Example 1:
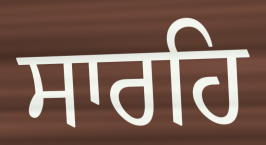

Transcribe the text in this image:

ਸਾਰਹਿ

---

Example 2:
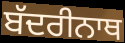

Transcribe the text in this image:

ਬੱਦਰੀਨਾਥ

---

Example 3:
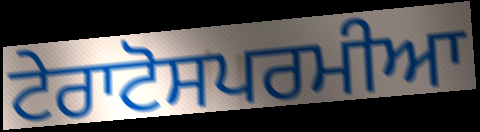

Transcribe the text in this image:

ਟੇਰਾਟੋਸਪਰਮੀਆ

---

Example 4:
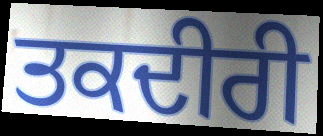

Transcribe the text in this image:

ਤਕਦੀਰੀ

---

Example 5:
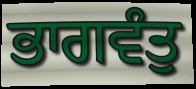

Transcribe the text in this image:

ਭਾਗਵੰਤੁ